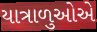
યાત્રાળુઓએ